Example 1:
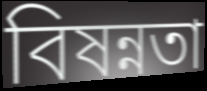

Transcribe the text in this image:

বিষন্নতা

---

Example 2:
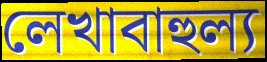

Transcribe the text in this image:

লেখাবাহুল্য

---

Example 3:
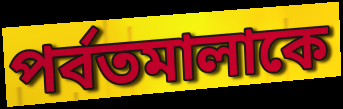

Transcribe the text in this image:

পর্বতমালাকে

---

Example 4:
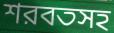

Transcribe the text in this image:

শরবতসহ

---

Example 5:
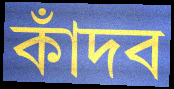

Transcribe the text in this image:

কাঁদব